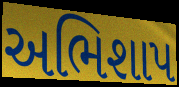
અભિશાપ